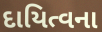
દાયિત્વના